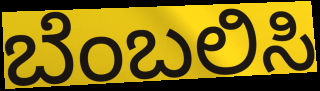
ಬೆಂಬಲಿಸಿ